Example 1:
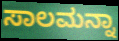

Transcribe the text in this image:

ಸಾಲಮನ್ನಾ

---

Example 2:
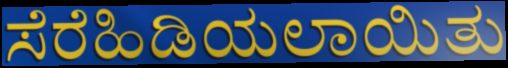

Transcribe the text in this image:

ಸೆರೆಹಿಡಿಯಲಾಯಿತು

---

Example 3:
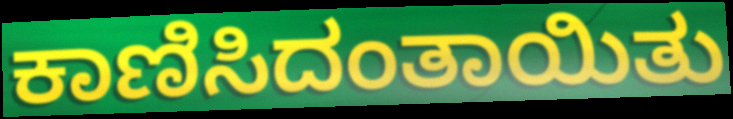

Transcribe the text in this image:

ಕಾಣಿಸಿದಂತಾಯಿತು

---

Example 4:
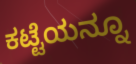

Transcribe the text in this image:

ಕಟ್ಟೆಯನ್ನೂ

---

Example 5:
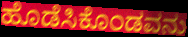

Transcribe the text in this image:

ಹೊಡೆಸಿಕೊಂಡವನು